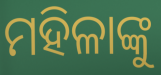
ମହିଳାଙ୍କୁ